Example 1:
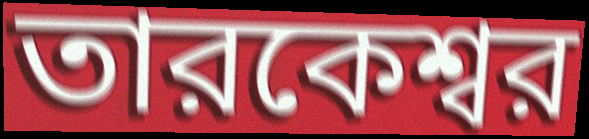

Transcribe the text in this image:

তারকেশ্বর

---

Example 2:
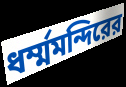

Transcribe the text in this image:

ধর্ম্মমন্দিরের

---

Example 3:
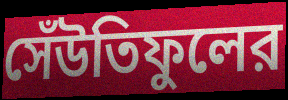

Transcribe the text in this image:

সেঁউতিফুলের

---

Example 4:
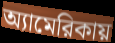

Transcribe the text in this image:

অ্যামেরিকায়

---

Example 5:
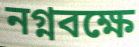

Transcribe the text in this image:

নগ্নবক্ষে